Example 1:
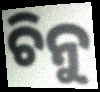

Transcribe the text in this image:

ଚିନୁ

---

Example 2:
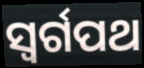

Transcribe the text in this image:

ସ୍ୱର୍ଗପଥ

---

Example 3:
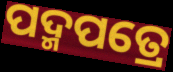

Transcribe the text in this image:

ପଦ୍ମପତ୍ରେ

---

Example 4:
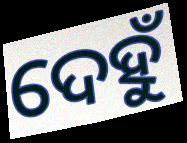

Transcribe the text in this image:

ଦେହୁଁ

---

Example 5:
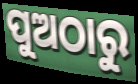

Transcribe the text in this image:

ପୁଅଠାରୁ